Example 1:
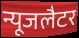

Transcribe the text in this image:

न्यूजलैटर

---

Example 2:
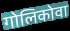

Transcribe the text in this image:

गोलिकोवा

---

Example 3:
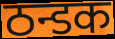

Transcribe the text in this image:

ठन्डक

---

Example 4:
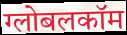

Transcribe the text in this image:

ग्लोबलकॉम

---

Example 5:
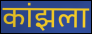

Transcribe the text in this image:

कांझला